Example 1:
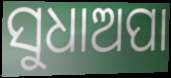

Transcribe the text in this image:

ସୁଧାଅପା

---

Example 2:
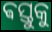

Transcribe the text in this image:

ଵସ୍ତୁକୁ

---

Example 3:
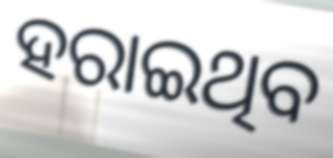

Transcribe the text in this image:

ହରାଇଥିବ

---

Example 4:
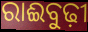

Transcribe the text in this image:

ରାଈବୁଢ଼ୀ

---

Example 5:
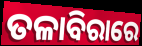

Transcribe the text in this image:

ତଳାବିରାରେ